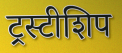
ट्रस्टीशिप